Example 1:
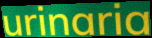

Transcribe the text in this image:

urinaria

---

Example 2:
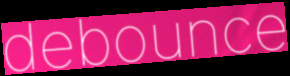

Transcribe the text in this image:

debounce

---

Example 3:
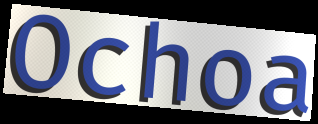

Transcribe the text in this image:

Ochoa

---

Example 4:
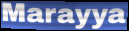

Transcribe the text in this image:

Marayya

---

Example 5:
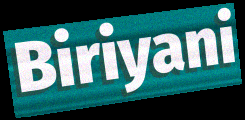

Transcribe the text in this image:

Biriyani